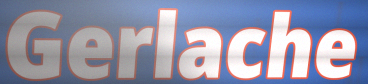
Gerlache